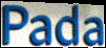
Pada